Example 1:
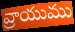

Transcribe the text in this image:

వ్రాయుము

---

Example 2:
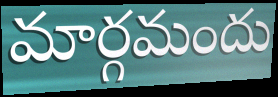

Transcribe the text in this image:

మార్గమందు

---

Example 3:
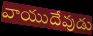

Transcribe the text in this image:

వాయుదేవుడు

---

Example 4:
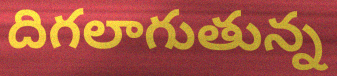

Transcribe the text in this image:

దిగలాగుతున్న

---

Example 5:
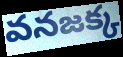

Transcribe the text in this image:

వనజక్క